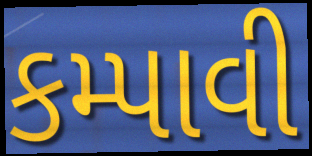
કમ્પાવી